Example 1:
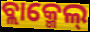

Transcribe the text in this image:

ବ୍ଲାକ୍ମେଲ୍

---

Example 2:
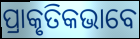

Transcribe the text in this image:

ପ୍ରାକୃତିକଭାବେ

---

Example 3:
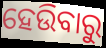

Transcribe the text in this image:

ହେଉିବାରୁ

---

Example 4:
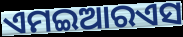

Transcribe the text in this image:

ଏମଇଆରଏସ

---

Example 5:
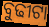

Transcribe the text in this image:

ବୁଢୀଟା